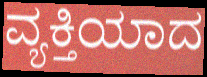
ವ್ಯಕ್ತಿಯಾದ